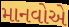
માનવોએ